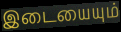
இடையையும்